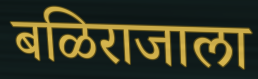
बळिराजाला